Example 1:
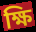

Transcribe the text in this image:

ক্ষি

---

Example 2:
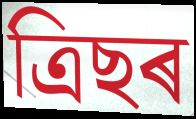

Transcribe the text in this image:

ত্ৰিছৰ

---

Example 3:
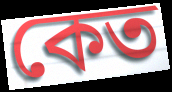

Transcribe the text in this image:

কেত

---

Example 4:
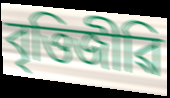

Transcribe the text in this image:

বৃত্তিজীৱি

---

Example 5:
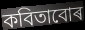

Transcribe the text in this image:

কবিতাবোৰ